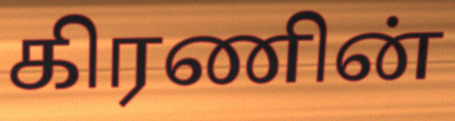
கிரணின்